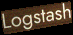
Logstash